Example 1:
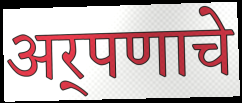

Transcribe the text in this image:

अर्पणाचे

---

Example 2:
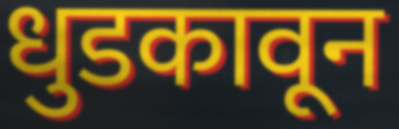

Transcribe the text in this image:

धुडकावून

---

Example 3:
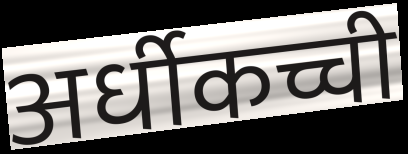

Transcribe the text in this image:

अर्धीकच्ची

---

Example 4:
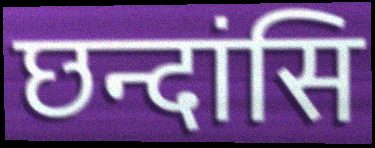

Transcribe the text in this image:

छन्दांसि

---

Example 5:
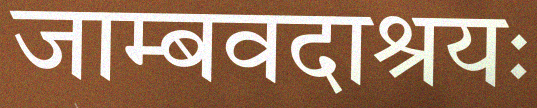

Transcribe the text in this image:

जाम्बवदाश्रयः